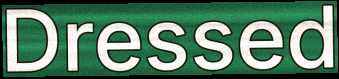
Dressed